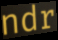
ndr